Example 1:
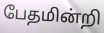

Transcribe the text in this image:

பேதமின்றி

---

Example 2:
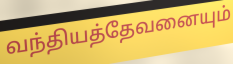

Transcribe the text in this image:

வந்தியத்தேவனையும்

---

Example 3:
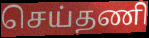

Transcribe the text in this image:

செய்தணி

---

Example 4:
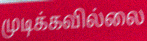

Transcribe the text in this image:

முடிக்கவில்லை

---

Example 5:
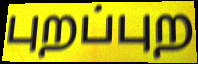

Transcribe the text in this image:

புறப்புற